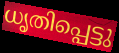
ധൃതിപ്പെട്ടു